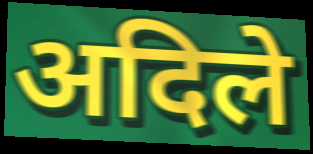
अदिले